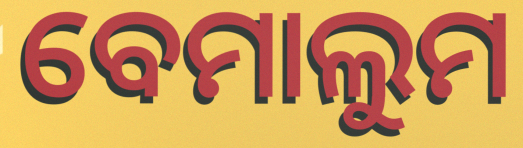
ବେମାଲୁମ